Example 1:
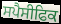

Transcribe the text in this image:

ਸਪੈਸੀਫਿਕ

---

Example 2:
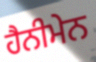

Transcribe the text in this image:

ਹੈਨੀਮੇਨ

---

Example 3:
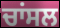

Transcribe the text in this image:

ਚਾਂਸਲ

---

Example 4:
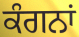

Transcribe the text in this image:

ਕੰਗਨਾਂ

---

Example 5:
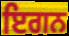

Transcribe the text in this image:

ਇਗਨ